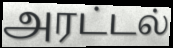
அரட்டல்